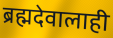
ब्रह्मदेवालाही